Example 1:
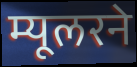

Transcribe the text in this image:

म्यूलरने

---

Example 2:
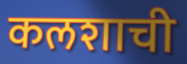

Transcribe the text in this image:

कलशाची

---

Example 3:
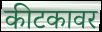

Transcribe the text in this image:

कीटकावर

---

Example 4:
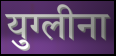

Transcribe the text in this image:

युग्लीना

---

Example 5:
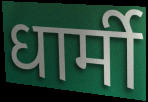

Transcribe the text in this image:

धार्मी